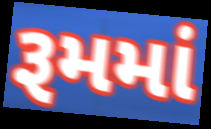
રૂમમાં